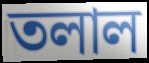
তলাল